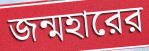
জন্মহারের